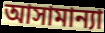
আসামান্যা